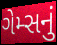
ગેમ્સનું